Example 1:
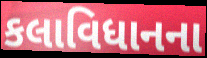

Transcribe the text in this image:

કલાવિધાનના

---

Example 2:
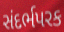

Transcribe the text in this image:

સંદર્ભપરક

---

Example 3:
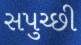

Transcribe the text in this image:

સપુચ્છી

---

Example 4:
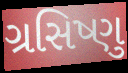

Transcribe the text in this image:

ગ્રસિષ્ણુ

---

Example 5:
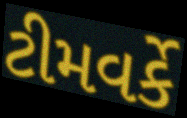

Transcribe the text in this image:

ટીમવર્કે